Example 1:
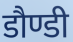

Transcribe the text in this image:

डौण्डी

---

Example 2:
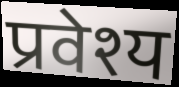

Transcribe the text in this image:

प्रवेश्य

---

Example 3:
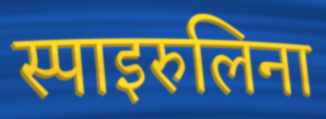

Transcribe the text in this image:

स्पाइरुलिना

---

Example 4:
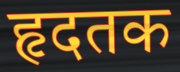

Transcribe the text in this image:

हृदतक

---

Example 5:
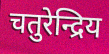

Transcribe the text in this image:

चतुरेन्द्रिय